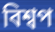
বিশ্বপ